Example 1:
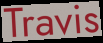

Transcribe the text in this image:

Travis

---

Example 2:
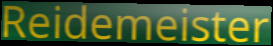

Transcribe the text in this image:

Reidemeister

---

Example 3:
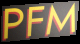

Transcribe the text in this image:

PFM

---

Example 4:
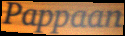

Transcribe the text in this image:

Pappaan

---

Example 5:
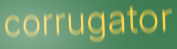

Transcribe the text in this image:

corrugator